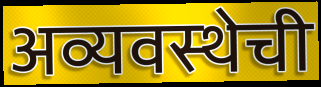
अव्यवस्थेची